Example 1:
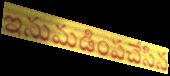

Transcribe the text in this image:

ఇనుమడింపచేసిన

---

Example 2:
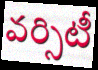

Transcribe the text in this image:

వర్సిటీ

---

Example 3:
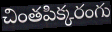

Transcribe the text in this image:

చింతపిక్కరంగు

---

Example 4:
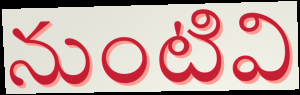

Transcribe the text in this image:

నుంటివి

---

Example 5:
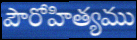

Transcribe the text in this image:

పౌరోహిత్యము